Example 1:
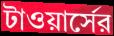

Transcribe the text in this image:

টাওয়ার্সের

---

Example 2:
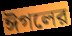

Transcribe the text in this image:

ঈগলের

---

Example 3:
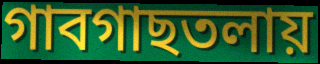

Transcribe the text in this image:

গাবগাছতলায়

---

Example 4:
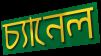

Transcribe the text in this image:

চ্যানেল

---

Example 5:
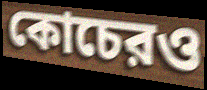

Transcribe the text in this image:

কোচেরও